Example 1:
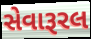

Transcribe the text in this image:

સેવારૂરલ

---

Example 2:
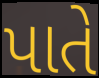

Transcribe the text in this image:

પાતે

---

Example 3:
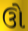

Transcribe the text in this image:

ઉો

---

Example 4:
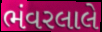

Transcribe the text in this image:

ભંવરલાલે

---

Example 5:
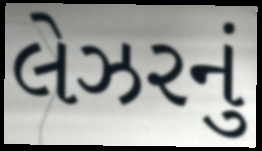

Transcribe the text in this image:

લેઝરનું